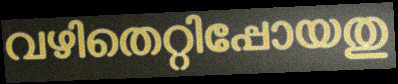
വഴിതെറ്റിപ്പോയതു